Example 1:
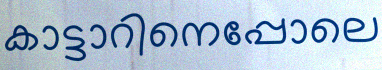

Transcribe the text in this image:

കാട്ടാറിനെപ്പോലെ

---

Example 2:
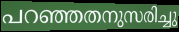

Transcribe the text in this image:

പറഞ്ഞതനുസരിച്ചു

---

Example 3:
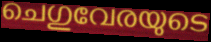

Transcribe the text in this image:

ചെഗുവേരയുടെ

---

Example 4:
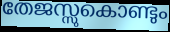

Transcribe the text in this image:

തേജസ്സുകൊണ്ടും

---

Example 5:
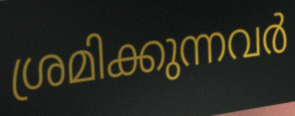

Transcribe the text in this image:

ശ്രമിക്കുന്നവർ